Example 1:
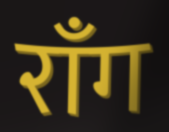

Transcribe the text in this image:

रॉंग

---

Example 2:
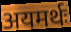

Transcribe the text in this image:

अयमर्थः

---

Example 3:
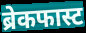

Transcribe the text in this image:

ब्रेकफास्ट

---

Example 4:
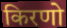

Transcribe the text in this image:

किरणो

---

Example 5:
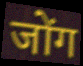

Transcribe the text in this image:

जोंग